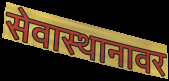
सेवास्थानावर